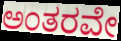
ಅಂತರವೇ